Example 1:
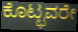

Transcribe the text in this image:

ಕೊಟ್ಟವರೇ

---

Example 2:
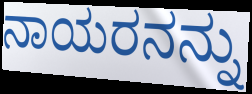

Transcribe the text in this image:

ನಾಯರನನ್ನು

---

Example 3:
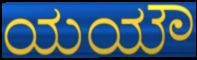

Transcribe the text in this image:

ಯಯೌ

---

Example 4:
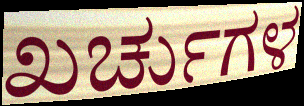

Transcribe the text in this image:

ಖರ್ಚುಗಳ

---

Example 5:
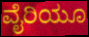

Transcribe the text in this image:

ವೈರಿಯೂ